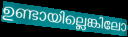
ഉണ്ടായില്ലെങ്കിലോ